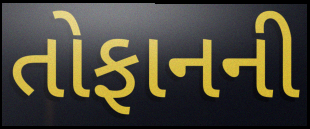
તોફાનની